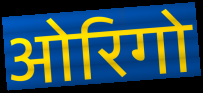
ओरिगो